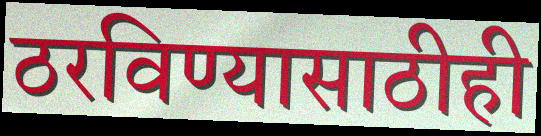
ठरविण्यासाठीही